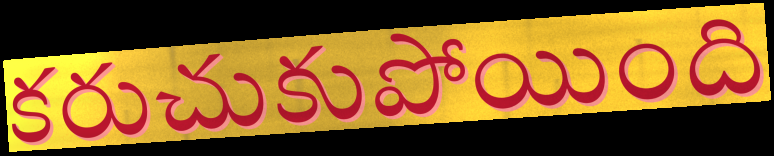
కరుచుకుపోయింది